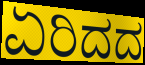
ಏರಿದದ